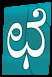
ಛೆ